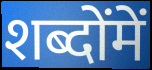
शब्दोंमें